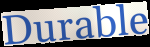
Durable